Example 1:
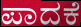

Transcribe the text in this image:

ಪಾದಕೆ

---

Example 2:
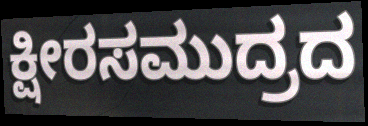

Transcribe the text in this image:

ಕ್ಷೀರಸಮುದ್ರದ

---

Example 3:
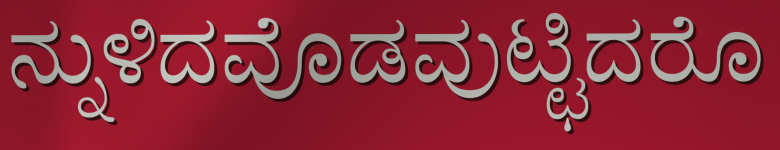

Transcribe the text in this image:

ನ್ನುಳಿದವೊಡವುಟ್ಟಿದರೊ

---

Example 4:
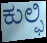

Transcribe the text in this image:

ಕುಲ್ಫಿ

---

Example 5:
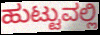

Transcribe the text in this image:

ಹುಟ್ಟುವಲ್ಲಿ